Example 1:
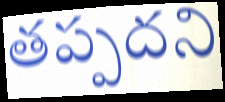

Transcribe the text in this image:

తప్పదని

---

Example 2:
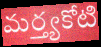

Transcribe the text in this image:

మర్త్యకోటి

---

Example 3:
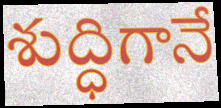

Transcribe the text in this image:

శుద్ధిగానే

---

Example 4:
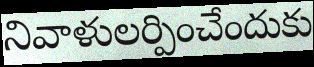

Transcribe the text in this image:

నివాళులర్పించేందుకు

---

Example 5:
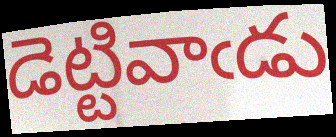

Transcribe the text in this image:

డెట్టివాఁడు